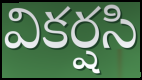
వికర్షసి